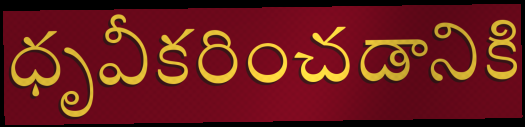
ధృవీకరించడానికి